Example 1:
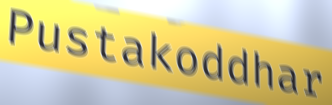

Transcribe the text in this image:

Pustakoddhar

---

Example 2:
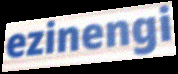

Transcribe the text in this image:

ezinengi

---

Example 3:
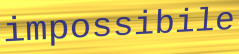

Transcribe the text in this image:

impossibile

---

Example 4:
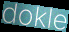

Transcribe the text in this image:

dokle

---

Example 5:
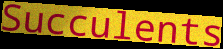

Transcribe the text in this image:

Succulents